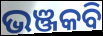
ଭଞ୍ଜକବି